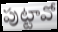
పుట్టావో